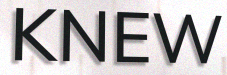
KNEW